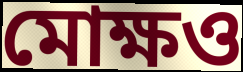
মোক্ষও